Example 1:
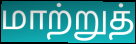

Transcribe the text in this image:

மாற்றுத்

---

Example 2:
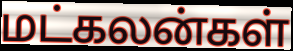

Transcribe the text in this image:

மட்கலன்கள்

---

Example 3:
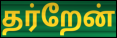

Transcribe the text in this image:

தர்றேன்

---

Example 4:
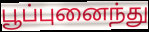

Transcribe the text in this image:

பூப்புனைந்து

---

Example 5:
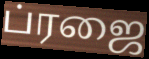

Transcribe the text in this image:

ப்ரஜை